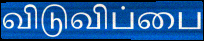
விடுவிப்பை